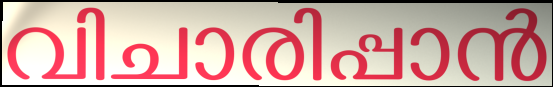
വിചാരിപ്പാൻ